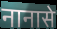
नानासे